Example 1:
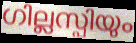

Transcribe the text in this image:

ഗില്ലസ്പിയും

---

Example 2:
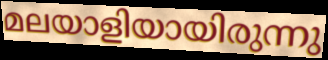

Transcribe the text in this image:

മലയാളിയായിരുന്നു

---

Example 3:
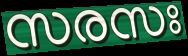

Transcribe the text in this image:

സരസഃ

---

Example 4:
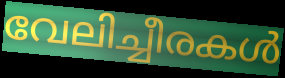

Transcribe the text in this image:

വേലിച്ചീരകൾ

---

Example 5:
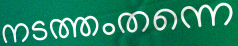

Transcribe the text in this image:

നടത്തംതന്നെ